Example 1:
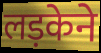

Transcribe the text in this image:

लड़केने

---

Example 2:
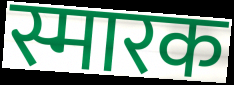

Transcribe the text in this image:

स्मारक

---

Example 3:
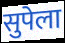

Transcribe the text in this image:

सुपेला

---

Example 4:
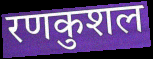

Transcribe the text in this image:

रणकुशल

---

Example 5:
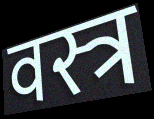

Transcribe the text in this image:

वस्त्र